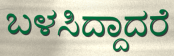
ಬಳಸಿದ್ದಾದರೆ